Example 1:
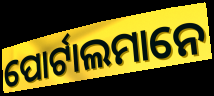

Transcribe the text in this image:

ପୋର୍ଟାଲମାନେ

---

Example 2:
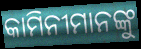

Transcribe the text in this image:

କାମିନୀମାନଙ୍କୁ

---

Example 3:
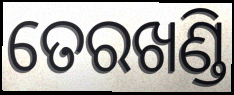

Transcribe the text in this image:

ତେରଖଣ୍ଡି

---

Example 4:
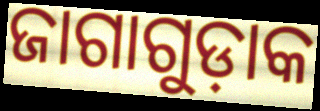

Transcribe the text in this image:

ଜାଗାଗୁଡ଼ାକ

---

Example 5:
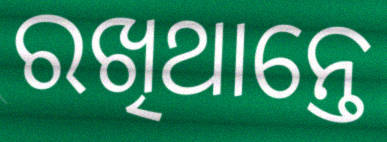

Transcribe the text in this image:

ରଖିଥାନ୍ତେ